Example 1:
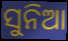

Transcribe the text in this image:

ସୁନିଆ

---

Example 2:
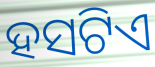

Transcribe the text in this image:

ହସଟିଏ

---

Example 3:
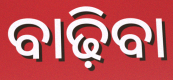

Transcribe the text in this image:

ବାଢ଼ିବା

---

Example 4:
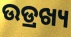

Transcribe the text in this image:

ଉଡ୍ରଖ୍ୟ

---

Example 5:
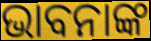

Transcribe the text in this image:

ଭାବନାଙ୍କ